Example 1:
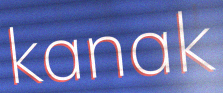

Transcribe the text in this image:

kanak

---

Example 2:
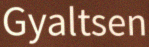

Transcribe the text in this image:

Gyaltsen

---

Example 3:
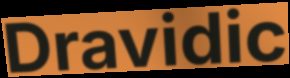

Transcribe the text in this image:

Dravidic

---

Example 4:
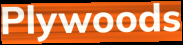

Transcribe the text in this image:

Plywoods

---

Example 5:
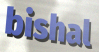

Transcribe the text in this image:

bishal